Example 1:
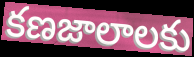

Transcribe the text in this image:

కణజాలాలకు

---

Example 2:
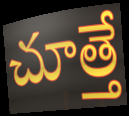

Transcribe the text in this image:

చూత్తే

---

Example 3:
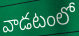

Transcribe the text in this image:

వాడటంలో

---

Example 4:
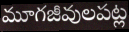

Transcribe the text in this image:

మూగజీవులపట్ల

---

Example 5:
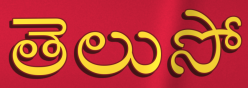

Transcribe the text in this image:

తెలుసో